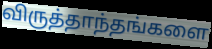
விருத்தாந்தங்களை